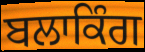
ਬਲਾਕਿੰਗ